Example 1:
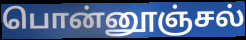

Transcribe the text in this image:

பொன்னூஞ்சல்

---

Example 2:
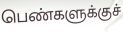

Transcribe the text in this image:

பெண்களுக்குச்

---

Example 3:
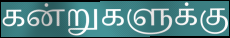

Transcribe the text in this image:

கன்றுகளுக்கு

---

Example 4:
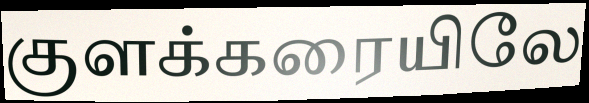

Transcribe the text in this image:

குளக்கரையிலே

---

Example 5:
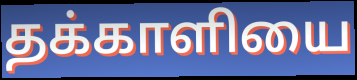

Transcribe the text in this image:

தக்காளியை